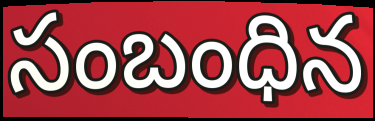
సంబంధిన